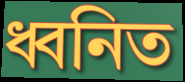
ধ্বনিত